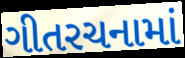
ગીતરચનામાં